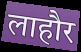
लाहौर